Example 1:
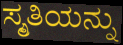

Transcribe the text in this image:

ಸ್ಮೃತಿಯನ್ನು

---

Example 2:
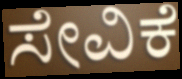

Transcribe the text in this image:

ಸೇವಿಕೆ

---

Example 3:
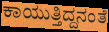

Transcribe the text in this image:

ಕಾಯುತ್ತಿದ್ದನಂತೆ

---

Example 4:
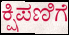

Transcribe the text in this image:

ಕ್ಷಿಪಣಿಗೆ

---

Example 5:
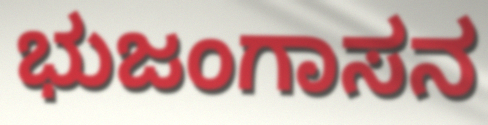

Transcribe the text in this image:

ಭುಜಂಗಾಸನ